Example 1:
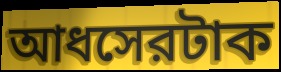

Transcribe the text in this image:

আধসেরটাক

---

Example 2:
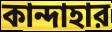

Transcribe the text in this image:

কান্দাহার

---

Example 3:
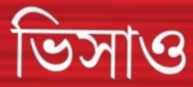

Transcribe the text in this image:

ভিসাও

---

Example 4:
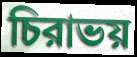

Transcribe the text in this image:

চিরাভয়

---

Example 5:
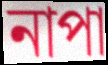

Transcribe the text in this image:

নাপা